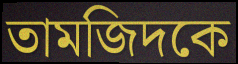
তামজিদকে